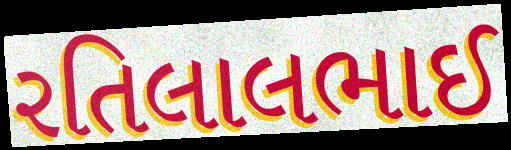
રતિલાલભાઈ